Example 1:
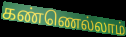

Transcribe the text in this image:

கண்ணெல்லாம்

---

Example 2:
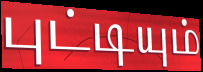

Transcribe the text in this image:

புட்டியும்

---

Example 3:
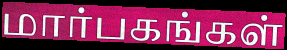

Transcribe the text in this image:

மார்பகங்கள்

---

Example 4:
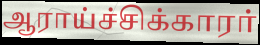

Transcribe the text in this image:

ஆராய்ச்சிக்காரர்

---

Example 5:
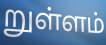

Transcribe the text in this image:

றுள்ளம்